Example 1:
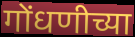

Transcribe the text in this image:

गोंधणीच्या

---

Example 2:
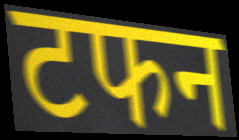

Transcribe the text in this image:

टफन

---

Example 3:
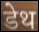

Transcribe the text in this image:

डेथ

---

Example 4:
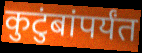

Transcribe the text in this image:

कुटुंबांपर्यंत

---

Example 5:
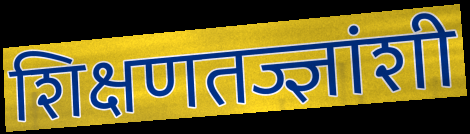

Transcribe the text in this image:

शिक्षणतज्ज्ञांशी